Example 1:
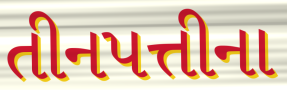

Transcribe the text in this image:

તીનપત્તીના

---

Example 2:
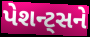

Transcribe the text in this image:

પેશન્ટ્સને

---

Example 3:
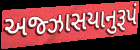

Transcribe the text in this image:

અજ્ઝાસયાનુરૂપં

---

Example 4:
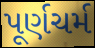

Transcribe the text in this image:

પૂર્ણચર્મ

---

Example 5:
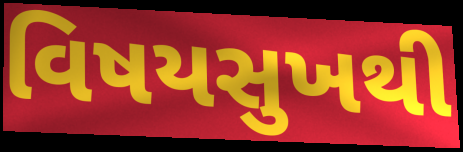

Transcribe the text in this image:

વિષયસુખથી